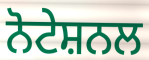
ਨੋਟੇਸ਼ਨਲ